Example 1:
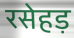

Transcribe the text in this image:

रसेहड़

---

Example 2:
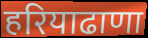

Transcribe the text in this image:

हरियाढाणा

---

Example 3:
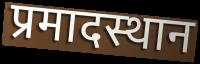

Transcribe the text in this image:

प्रमादस्थान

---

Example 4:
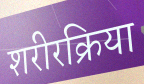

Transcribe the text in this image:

शरीरक्रिया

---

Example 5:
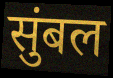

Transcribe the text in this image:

सुंबल